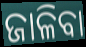
ଜାଳିବା